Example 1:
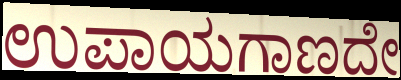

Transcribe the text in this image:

ಉಪಾಯಗಾಣದೇ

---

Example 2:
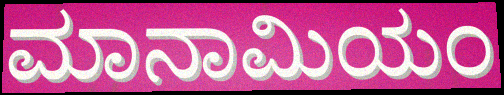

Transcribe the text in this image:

ಮಾನಾಮಿಯಂ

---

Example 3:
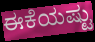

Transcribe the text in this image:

ಈಕೆಯಷ್ಟು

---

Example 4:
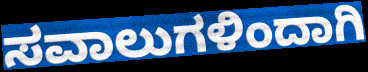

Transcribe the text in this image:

ಸವಾಲುಗಳಿಂದಾಗಿ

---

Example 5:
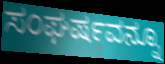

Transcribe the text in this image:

ಸಂಘರ್ಷವನ್ನೂ